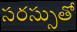
సరస్సుతో